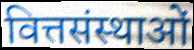
वित्तसंस्थाओं